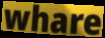
whare